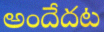
అందేదట